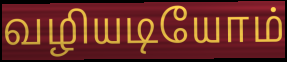
வழியடியோம்